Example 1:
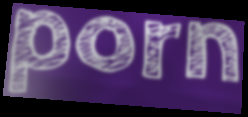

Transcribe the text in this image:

porn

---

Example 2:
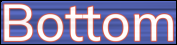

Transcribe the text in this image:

Bottom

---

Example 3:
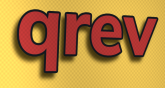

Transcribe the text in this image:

qrev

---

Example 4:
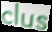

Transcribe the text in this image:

clus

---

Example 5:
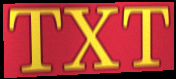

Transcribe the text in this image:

TXT